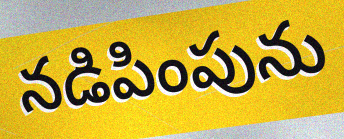
నడిపింపును